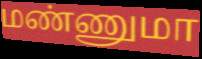
மண்ணுமா